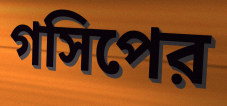
গসিপের